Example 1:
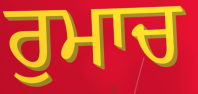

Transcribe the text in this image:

ਰੁਮਾਚ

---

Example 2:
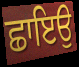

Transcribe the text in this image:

ਛਾਇਉ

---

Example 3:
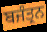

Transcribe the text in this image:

ਬਜੰਤ੍ਰਨ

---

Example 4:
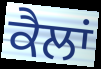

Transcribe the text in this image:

ਕੈਲਾਂ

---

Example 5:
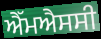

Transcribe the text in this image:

ਐੱਮਐਸਸੀ